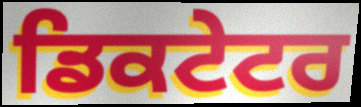
ਡਿਕਟੇਟਰ